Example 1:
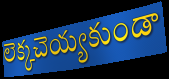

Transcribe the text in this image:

లెక్కచెయ్యకుండా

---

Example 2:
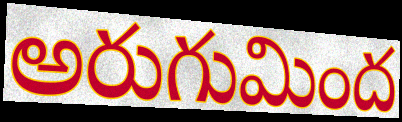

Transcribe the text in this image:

అరుగుమింద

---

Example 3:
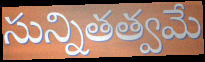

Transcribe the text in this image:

సున్నితత్వమే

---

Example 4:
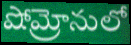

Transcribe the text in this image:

షోమ్రోనులో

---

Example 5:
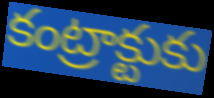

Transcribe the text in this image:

కంట్రాక్టుకు